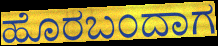
ಹೊರಬಂದಾಗ